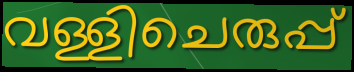
വള്ളിചെരുപ്പ്